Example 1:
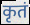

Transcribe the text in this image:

कृतं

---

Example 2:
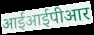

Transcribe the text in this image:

आईआईपीआर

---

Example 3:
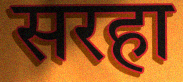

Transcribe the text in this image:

सरहा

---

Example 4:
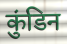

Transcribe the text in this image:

कुंडिन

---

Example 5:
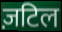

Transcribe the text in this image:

ज़टिल